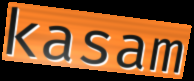
kasam